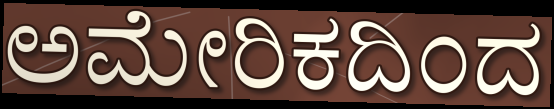
ಅಮೇರಿಕದಿಂದ